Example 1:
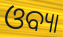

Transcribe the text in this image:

ଓବ୍ୟା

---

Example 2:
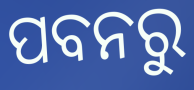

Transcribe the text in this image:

ପବନରୁ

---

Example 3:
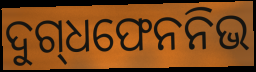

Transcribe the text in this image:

ଦୁଗ୍‍ଧଫେନନିଭ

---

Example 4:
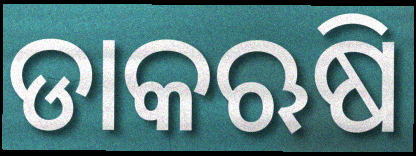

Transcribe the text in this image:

ଡାକଋଷି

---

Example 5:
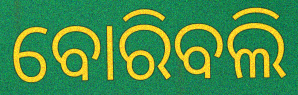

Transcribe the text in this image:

ବୋରିବଲି